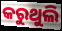
କରୁଥୁଲି